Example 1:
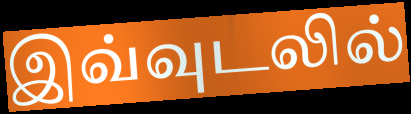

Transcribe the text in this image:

இவ்வுடலில்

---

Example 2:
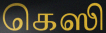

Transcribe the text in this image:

கெஸி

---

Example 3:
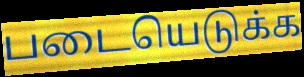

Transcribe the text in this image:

படையெடுக்க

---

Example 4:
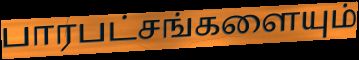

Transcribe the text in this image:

பாரபட்சங்களையும்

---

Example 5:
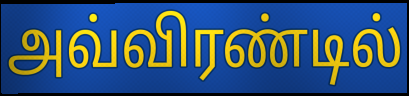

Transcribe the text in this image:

அவ்விரண்டில்